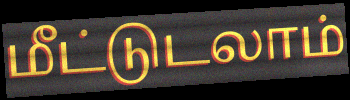
மீட்டுடலாம்